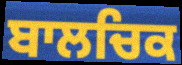
ਬਾਲਚਿਕ